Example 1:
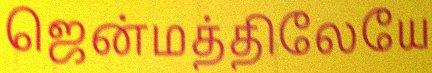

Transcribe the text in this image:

ஜென்மத்திலேயே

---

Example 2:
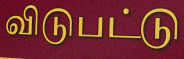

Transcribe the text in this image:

விடுபட்டு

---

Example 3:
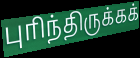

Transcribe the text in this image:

புரிந்திருக்கக்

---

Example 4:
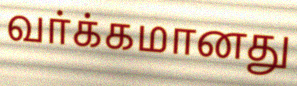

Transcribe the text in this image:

வர்க்கமானது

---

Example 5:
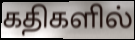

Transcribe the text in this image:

கதிகளில்